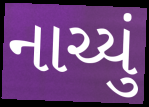
નાચ્યું